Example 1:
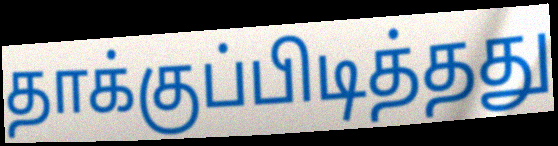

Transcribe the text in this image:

தாக்குப்பிடித்தது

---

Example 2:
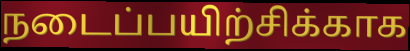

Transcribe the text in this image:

நடைப்பயிற்சிக்காக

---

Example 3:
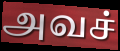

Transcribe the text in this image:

அவச்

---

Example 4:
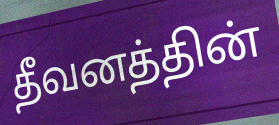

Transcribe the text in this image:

தீவனத்தின்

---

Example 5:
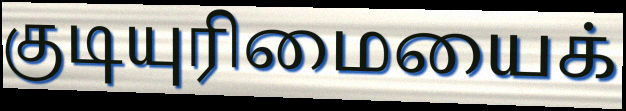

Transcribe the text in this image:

குடியுரிமையைக்